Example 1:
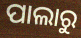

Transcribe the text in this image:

ପାଲାରୁ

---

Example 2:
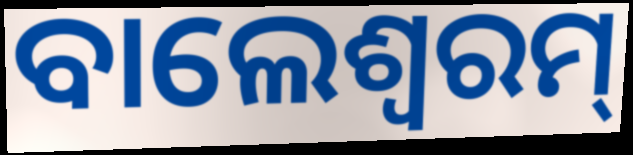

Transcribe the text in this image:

ବାଲେଶ୍ବରମ୍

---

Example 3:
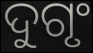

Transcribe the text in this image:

ଦୁଗୃଂ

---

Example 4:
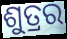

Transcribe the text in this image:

ଶୁତ୍ରର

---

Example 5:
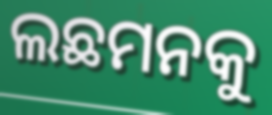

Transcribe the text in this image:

ଲଛମନକୁ